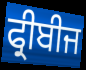
ਫ੍ਰੀਬੀਜ